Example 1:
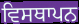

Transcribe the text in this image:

ਵਿਸਥਾਪਨ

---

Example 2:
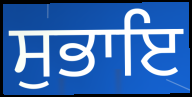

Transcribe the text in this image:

ਸੁਭਾਇ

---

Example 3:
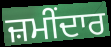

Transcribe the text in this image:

ਜ਼ਮੀਂਦਾਰ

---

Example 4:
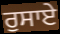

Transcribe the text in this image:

ਰੁਸਾਏ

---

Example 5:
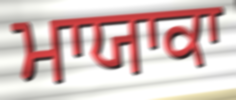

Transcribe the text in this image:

ਮਾਯਾਕਾ